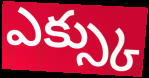
ఎక్స్కు